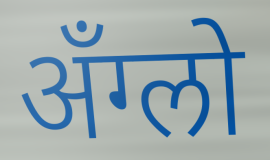
अँग्लो